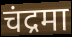
चंद्रमा